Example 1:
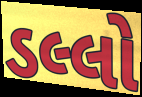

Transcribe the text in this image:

ડલ્લો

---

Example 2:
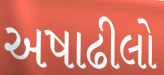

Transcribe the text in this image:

અષાઢીલો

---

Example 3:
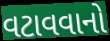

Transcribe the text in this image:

વટાવવાનો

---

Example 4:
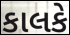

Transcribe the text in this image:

કાલકે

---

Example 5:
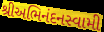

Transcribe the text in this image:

શ્રીઅભિનંદનસ્વામી